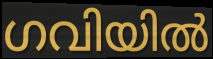
ഗവിയിൽ